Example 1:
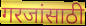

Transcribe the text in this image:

गरजांसाठी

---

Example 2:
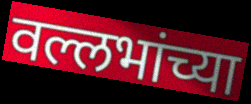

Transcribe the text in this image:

वल्लभांच्या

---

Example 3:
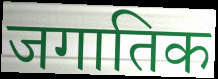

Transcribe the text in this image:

जगातिक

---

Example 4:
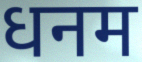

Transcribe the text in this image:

धनम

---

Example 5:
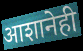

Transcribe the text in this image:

आशानेही